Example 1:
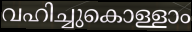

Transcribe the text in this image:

വഹിച്ചുകൊള്ളാം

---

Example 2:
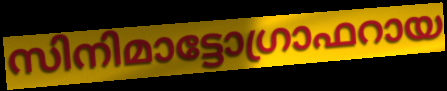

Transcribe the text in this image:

സിനിമാട്ടോഗ്രാഫറായ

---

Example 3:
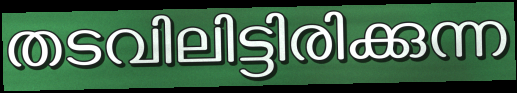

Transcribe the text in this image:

തടവിലിട്ടിരിക്കുന്ന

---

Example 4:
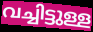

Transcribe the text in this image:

വച്ചിട്ടുള്ള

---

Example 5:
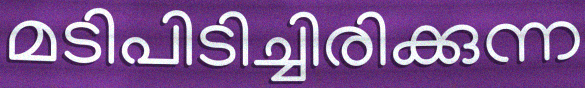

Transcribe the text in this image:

മടിപിടിച്ചിരിക്കുന്ന